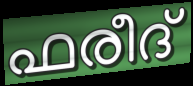
ഫരീദ്